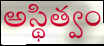
అస్థిత్వం